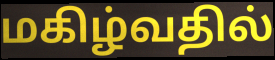
மகிழ்வதில்